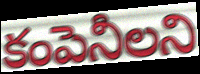
కంపెనీలని